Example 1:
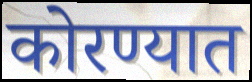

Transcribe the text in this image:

कोरण्यात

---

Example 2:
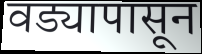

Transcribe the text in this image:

वड्यापासून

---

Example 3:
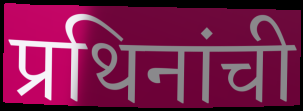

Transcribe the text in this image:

प्रथिनांची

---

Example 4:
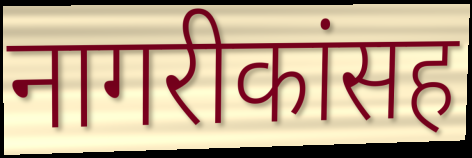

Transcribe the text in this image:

नागरीकांसह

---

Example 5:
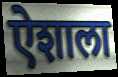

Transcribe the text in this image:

ऐशाला